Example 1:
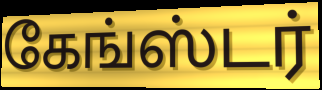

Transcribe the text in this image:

கேங்ஸ்டர்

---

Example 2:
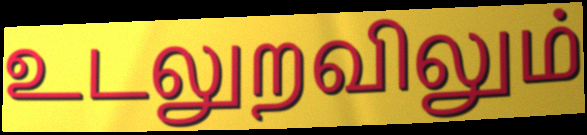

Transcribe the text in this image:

உடலுறவிலும்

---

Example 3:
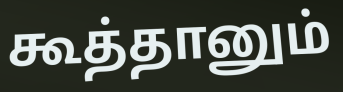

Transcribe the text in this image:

கூத்தானும்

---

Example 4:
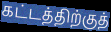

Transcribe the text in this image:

கட்டத்திற்குத்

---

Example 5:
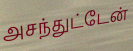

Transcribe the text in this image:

அசந்துட்டேன்